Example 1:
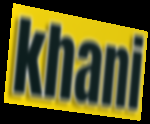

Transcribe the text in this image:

khani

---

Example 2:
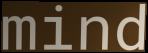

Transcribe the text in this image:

mind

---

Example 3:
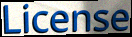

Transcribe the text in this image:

License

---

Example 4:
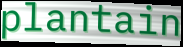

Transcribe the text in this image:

plantain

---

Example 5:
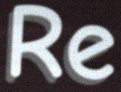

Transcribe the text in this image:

Re